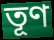
তূণ